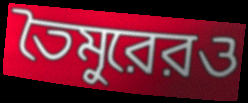
তৈমুরেরও